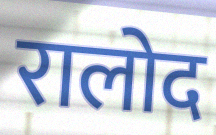
रालोद